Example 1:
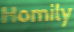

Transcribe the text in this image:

Homily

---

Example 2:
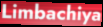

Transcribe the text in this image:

Limbachiya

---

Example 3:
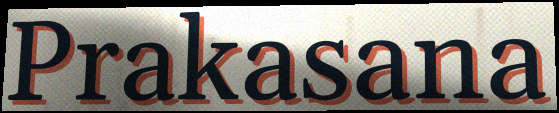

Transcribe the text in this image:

Prakasana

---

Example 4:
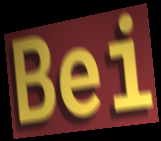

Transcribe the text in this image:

Bei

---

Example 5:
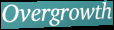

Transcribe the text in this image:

Overgrowth